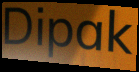
Dipak